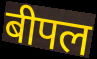
बीपल